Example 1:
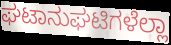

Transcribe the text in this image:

ಘಟಾನುಘಟಿಗಳೆಲ್ಲಾ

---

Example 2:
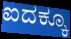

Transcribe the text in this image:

ಐದಕ್ಕೂ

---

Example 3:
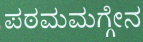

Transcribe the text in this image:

ಪಠಮಮಗ್ಗೇನ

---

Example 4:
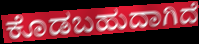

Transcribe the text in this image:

ಕೊಡಬಹುದಾಗಿದೆ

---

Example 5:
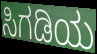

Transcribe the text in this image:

ಸಿಗಡಿಯ